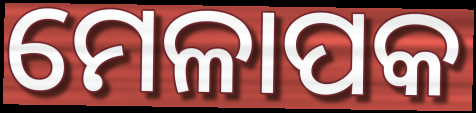
ମେଳାପକ